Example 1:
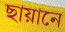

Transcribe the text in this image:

ছায়ানে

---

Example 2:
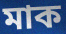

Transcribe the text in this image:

মাক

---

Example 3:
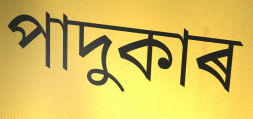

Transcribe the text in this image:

পাদুকাৰ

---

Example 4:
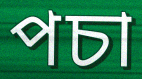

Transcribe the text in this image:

পচা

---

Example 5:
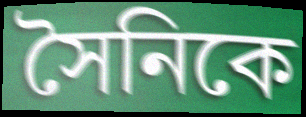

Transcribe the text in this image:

সৈনিকে